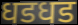
धडधड